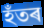
হঁতৰ